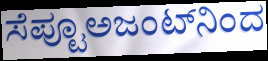
ಸೆಪ್ಟೂಅಜಂಟ್‌ನಿಂದ